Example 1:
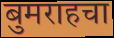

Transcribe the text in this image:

बुमराहचा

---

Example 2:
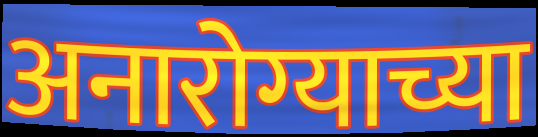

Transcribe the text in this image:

अनारोग्याच्या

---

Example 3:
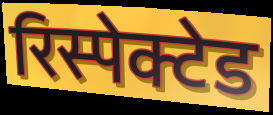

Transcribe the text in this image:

रिस्पेक्टेड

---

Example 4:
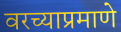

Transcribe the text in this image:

वरच्याप्रमाणे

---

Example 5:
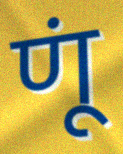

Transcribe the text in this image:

णूं